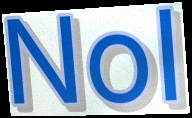
Nol